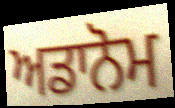
ਅਡਾਨੋਮ